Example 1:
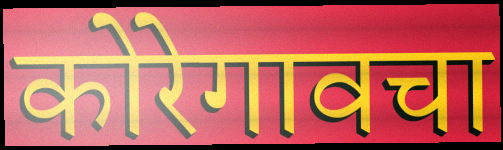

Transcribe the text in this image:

कोरेगावचा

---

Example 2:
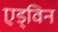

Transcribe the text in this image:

एड्विन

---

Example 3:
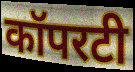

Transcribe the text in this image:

कॉपरटी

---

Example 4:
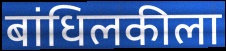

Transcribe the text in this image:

बांधिलकीला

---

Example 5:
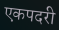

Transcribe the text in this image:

एकपदरी